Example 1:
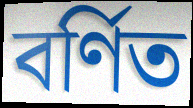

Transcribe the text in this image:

বৰ্ণিত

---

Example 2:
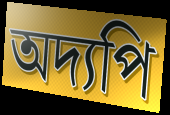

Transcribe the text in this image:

অদ্যপি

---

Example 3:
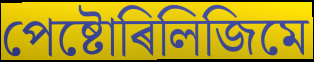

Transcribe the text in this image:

পেষ্টোৰিলিজিমে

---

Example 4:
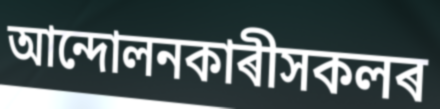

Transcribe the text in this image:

আন্দোলনকাৰীসকলৰ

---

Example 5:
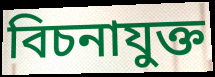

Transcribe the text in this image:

বিচনাযুক্ত